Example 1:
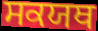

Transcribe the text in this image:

ਸਕਯਥ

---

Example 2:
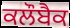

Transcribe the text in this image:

ਕਲੌਬੈਕ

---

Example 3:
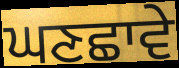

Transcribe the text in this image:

ਘਣਛਾਵੇ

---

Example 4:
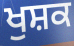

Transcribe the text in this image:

ਖੁਸ਼ਕ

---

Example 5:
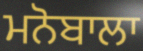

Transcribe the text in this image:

ਮਨੋਬਾਲਾ